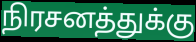
நிரசனத்துக்கு